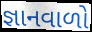
જ્ઞાનવાળો